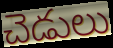
చెడులు